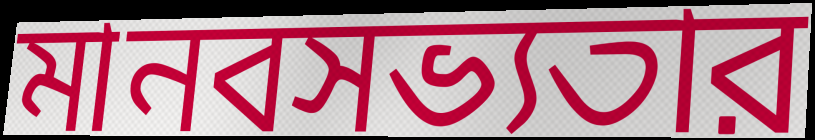
মানবসভ্যতার